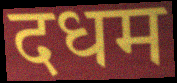
दधम